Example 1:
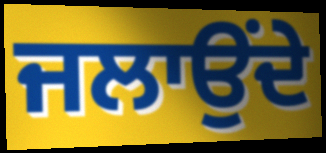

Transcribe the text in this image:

ਜਲਾਉਂਦੇ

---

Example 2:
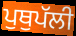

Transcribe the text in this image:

ਪੁਥੁਪੱਲੀ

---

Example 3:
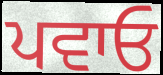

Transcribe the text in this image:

ਪਵਾਓ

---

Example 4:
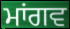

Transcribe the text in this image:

ਮਾਂਗਵ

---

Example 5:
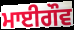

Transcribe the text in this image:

ਮਾਈਗੌਵ